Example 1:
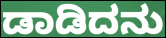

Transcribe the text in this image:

ಡಾಡಿದನು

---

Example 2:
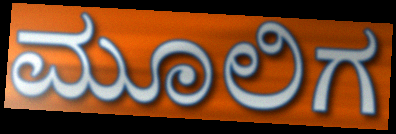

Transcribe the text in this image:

ಮೂಲಿಗ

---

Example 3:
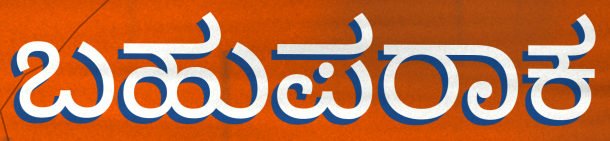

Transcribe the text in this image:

ಬಹುಪರಾಕ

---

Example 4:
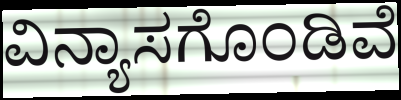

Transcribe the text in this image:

ವಿನ್ಯಾಸಗೊಂಡಿವೆ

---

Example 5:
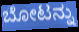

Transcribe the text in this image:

ಬೋಟನ್ನು